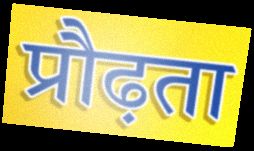
प्रौढ़ता